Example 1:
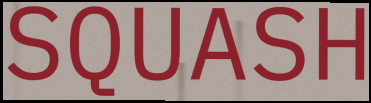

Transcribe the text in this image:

SQUASH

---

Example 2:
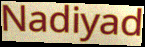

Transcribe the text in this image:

Nadiyad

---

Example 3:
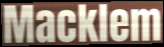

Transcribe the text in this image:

Macklem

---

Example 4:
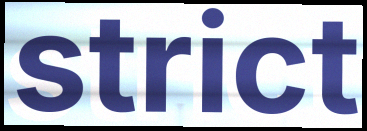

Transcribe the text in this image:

strict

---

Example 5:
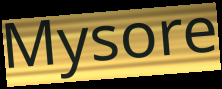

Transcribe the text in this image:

Mysore